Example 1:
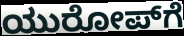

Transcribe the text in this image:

ಯುರೋಪ್‌ಗೆ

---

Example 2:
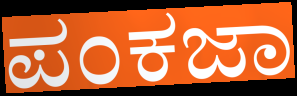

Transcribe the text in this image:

ಪಂಕಜಾ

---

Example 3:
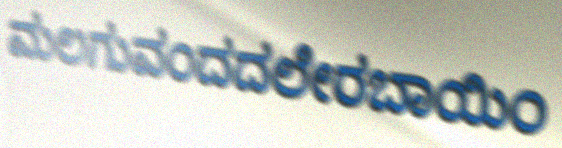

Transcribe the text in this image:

ಮಲಗುವಂದದಲೇರಬಾಯಿಂ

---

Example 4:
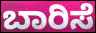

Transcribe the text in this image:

ಬಾರಿಸೆ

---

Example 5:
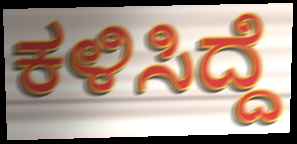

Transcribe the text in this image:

ಕಳಿಸಿದ್ದೆ